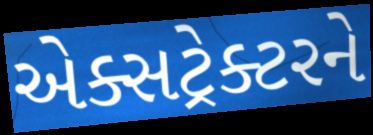
એક્સટ્રેક્ટરને